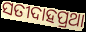
ସତୀଦାହପ୍ରଥା